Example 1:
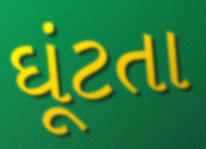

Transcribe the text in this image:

ઘૂંટતા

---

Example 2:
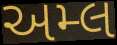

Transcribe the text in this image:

અમ્લ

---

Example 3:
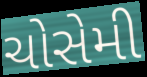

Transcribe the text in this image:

ચોસેમી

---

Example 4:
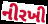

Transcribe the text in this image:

નીરખી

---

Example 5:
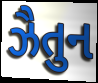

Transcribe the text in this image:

ઝૈતુન